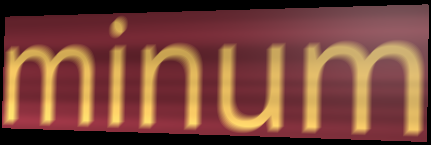
minum